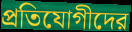
প্রতিযোগীদের